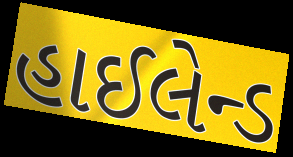
હાઈલેન્ડ